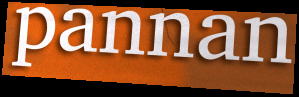
pannan